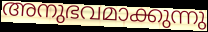
അനുഭവമാക്കുന്നു